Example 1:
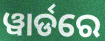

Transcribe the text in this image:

ୱାର୍ଡରେ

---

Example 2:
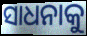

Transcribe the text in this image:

ସାଧନାକୁ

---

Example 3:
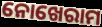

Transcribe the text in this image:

ନୋଖେରାମ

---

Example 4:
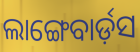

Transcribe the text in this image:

ଲାଙ୍ଗେବାର୍ଡ଼ସ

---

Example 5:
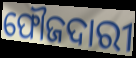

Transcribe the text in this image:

ଫୌଜଦାରୀ